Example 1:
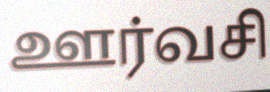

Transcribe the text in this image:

ஊர்வசி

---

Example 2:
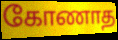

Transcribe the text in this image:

கோணாத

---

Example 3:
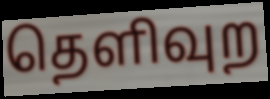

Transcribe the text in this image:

தெளிவுற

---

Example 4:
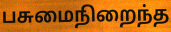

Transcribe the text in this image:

பசுமைநிறைந்த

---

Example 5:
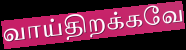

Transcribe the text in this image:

வாய்திறக்கவே